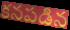
కనపడిన